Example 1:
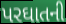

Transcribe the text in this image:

પરઘાતની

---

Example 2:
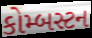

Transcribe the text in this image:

કોમ્બસ્ટન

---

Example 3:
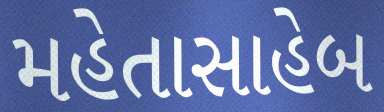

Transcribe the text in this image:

મહેતાસાહેબ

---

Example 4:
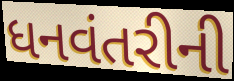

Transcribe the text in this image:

ધનવંતરીની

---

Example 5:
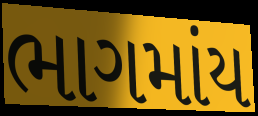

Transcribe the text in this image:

ભાગમાંય